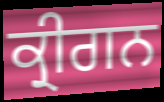
ਕ੍ਰੀਗਨ